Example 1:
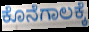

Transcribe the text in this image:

ಕೊನೆಗಾಲಕ್ಕೆ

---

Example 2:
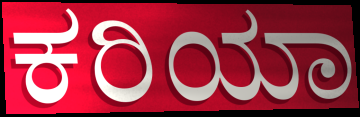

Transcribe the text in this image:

ಕರಿಯಾ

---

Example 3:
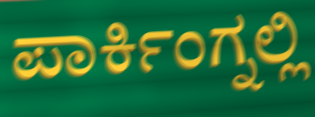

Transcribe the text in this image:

ಪಾರ್ಕಿಂಗ್ನಲ್ಲಿ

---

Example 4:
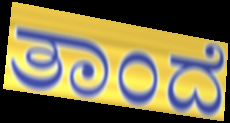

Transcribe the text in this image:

ತಾಂದೆ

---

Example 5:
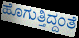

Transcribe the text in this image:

ಹೊಗುತ್ತಿದ್ದಂತೆ